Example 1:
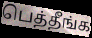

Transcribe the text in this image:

பெத்தீங்க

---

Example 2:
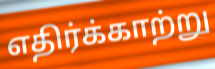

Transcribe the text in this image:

எதிர்க்காற்று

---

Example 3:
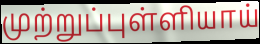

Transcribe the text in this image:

முற்றுப்புள்ளியாய்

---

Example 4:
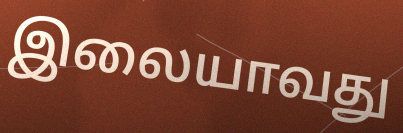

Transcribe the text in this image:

இலையாவது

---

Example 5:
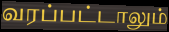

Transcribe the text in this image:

வரப்பட்டாலும்